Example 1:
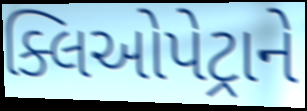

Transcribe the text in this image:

ક્લિઓપેટ્રાને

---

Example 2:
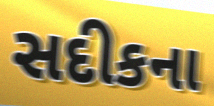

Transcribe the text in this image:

સદીકના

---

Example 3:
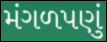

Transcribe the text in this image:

મંગળપણું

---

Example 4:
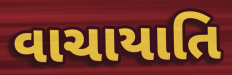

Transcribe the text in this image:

વાચાયાતિ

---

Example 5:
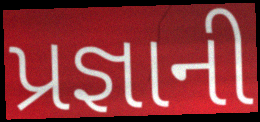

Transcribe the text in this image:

પ્રજ્ઞાની